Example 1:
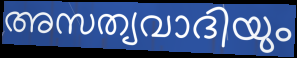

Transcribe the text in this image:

അസത്യവാദിയും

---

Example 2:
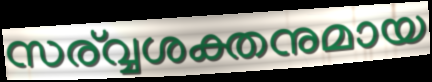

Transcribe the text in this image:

സര്വ്വശക്തനുമായ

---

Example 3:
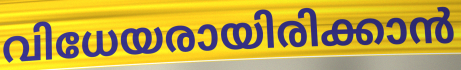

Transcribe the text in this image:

വിധേയരായിരിക്കാൻ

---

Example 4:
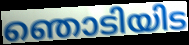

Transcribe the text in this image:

ഞൊടിയിട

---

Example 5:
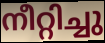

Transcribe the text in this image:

നീറ്റിച്ചു